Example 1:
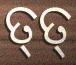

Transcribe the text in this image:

ତ୍‌ତ୍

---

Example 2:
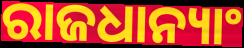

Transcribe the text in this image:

ରାଜଧାନ୍ୟାଂ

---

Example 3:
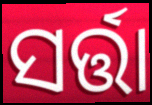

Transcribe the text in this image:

ସର୍ତ୍ତା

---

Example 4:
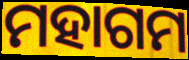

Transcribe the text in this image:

ମହାଗମ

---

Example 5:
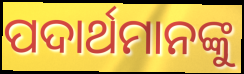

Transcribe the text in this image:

ପଦାର୍ଥମାନଙ୍କୁ